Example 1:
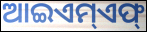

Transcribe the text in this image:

ଆଇଏମ୍ଏଫ୍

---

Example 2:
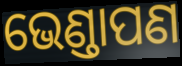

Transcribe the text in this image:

ଭେଣ୍ଡାପଣ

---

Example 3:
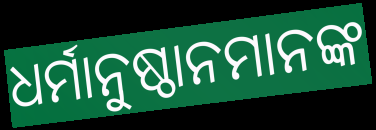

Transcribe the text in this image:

ଧର୍ମାନୁଷ୍ଠାନମାନଙ୍କ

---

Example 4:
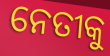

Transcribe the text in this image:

ନେତୀକୁ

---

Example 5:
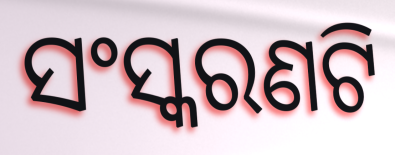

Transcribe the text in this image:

ସଂସ୍କରଣଟି